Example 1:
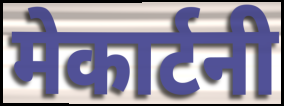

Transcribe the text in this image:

मेकार्टनी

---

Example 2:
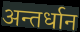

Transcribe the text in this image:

अन्तर्धान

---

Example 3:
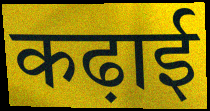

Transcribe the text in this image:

कढ़ाई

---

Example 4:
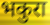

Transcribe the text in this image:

भकुरा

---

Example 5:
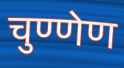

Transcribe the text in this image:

चुण्णेण